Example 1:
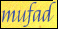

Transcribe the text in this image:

mufad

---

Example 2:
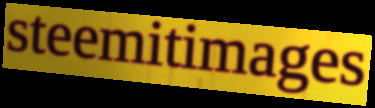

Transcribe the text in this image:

steemitimages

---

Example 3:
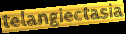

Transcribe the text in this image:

telangiectasia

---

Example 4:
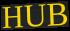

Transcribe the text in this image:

HUB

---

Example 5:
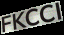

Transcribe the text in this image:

FKCCI